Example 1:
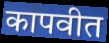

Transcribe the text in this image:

कापवीत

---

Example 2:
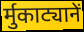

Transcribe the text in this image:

र्मुकाट्यानें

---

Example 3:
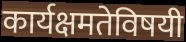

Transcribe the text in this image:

कार्यक्षमतेविषयी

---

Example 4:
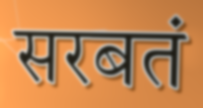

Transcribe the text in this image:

सरबतं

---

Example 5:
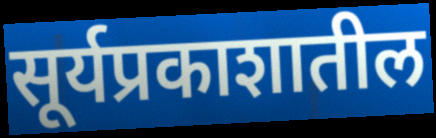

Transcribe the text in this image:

सूर्यप्रकाशातील